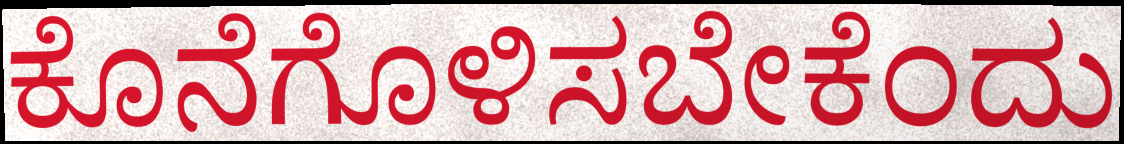
ಕೊನೆಗೊಳಿಸಬೇಕೆಂದು